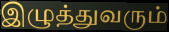
இழுத்துவரும்